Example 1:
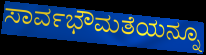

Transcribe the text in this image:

ಸಾರ್ವಭೌಮತೆಯನ್ನೂ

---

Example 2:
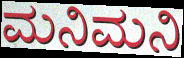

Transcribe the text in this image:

ಮನಿಮನಿ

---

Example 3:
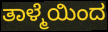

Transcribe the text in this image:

ತಾಳ್ಮೆಯಿಂದ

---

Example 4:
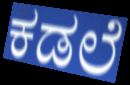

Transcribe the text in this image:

ಕಡಲೆ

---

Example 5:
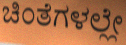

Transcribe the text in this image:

ಚಿಂತೆಗಳಲ್ಲೇ